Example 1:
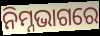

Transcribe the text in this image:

ନିମ୍ନଭାଗରେ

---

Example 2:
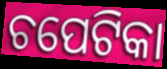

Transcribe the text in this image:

ଚପେଟିକା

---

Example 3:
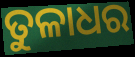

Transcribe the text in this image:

ତୁଳାଧର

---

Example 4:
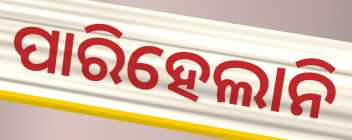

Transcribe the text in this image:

ପାରିହେଲାନି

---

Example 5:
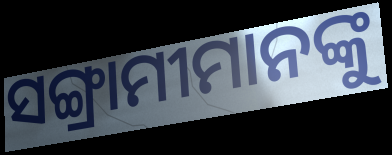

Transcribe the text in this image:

ସଙ୍ଗ୍ରାମୀମାନଙ୍କୁ